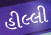
હીલ્લી